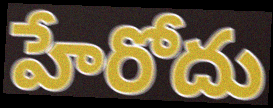
హేరోదు